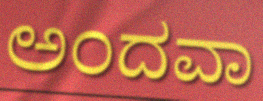
ಅಂದವಾ